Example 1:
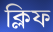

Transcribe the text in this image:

ক্লিফ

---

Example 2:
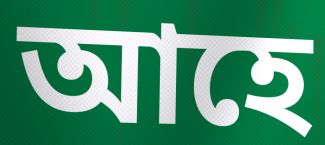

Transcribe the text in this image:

আহে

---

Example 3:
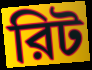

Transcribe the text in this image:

রিট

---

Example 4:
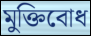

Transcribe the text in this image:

মুক্তিবোধ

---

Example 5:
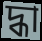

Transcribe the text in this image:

দ্ধা